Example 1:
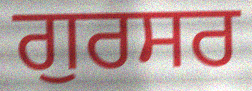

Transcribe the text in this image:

ਗੁਰਸਰ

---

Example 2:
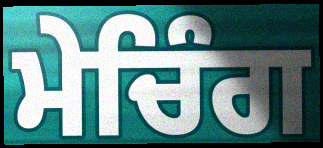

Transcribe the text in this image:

ਮੇਚਿੰਗ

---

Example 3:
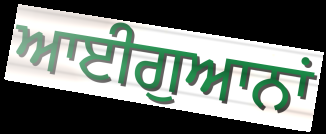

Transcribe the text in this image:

ਆਈਗੁਆਨਾਂ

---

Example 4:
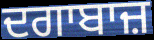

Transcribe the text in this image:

ਦਗਾਬਾਜ਼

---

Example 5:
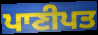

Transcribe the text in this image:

ਪਾਣੀਪਤ